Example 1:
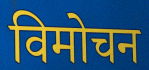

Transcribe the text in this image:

विमोचन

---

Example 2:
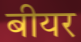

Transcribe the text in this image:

बीयर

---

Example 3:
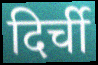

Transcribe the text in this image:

दिर्ची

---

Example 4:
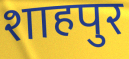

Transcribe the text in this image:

शाहपुर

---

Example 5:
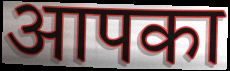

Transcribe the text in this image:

आपका